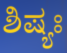
ಶಿಷ್ಯಃ